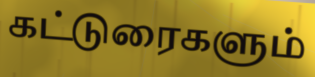
கட்டுரைகளும்